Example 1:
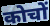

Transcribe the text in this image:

कोचों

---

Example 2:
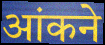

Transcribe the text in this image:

आंकने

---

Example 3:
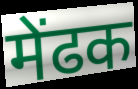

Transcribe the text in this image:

मेंढक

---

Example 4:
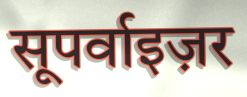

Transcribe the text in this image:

सूपर्वाइज़र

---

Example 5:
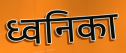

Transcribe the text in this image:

ध्वनिका